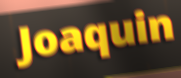
Joaquin